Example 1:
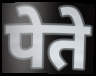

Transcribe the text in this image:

पेते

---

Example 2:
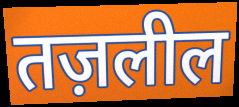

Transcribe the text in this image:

तज़लील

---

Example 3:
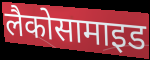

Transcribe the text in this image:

लैकोसामाइड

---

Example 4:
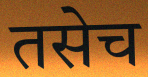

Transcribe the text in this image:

तसेच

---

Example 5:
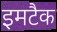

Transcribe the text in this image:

इमटैक